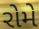
રોમે